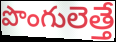
పొంగులెత్తే